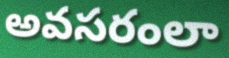
అవసరంలా